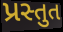
પ્રસ્તુત